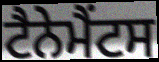
ਟੈਨੇਮੈਂਟਸ